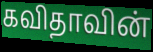
கவிதாவின்